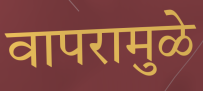
वापरामुळे